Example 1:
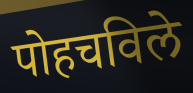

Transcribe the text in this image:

पोहचविले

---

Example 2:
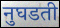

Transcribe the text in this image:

नुघडती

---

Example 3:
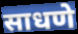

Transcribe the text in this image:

साधणे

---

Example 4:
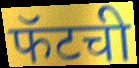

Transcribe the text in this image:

फॅटची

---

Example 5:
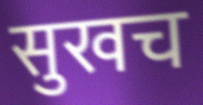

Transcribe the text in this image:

सुखच